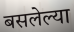
बसलेल्या